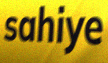
sahiye